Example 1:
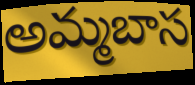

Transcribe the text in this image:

అమ్మబాస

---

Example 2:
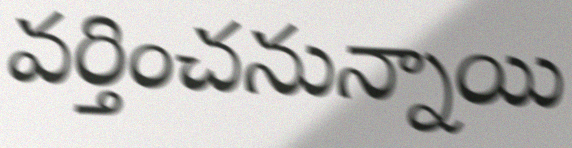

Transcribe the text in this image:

వర్తించనున్నాయి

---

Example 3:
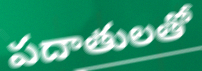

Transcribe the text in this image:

పదాతులతో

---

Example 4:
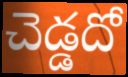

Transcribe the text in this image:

చెడ్డదో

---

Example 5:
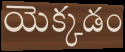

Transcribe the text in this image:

యెక్కడం